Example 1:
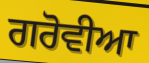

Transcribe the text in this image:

ਗਰੋਵੀਆ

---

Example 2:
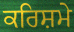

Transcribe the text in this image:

ਕਰਿਸ਼ਮੇ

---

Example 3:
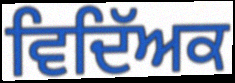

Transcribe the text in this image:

ਵਿਦਿੱਅਕ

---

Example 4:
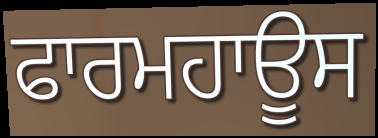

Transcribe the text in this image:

ਫਾਰਮਹਾਊਸ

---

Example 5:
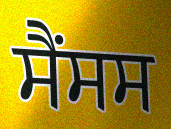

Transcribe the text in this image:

ਸੈਂਸਸ